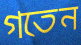
গতেন